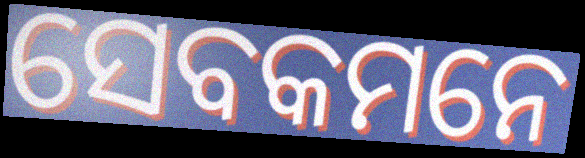
ସେବକମନେ